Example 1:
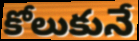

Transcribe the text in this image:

కోలుకునే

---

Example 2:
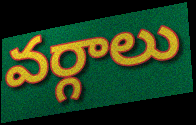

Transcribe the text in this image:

వర్గాలు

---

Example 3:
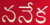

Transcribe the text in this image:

ననేక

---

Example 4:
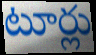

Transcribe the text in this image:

టూర్లు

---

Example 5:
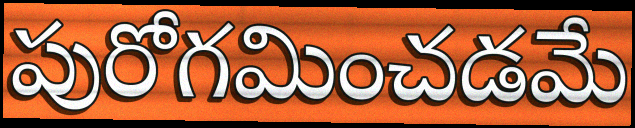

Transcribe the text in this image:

పురోగమించడమే